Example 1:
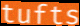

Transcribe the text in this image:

tufts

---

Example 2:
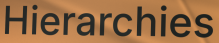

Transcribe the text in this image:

Hierarchies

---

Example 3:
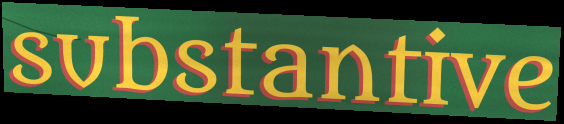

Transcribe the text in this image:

substantive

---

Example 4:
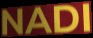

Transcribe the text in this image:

NADI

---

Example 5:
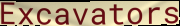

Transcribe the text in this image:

Excavators